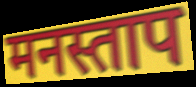
मनस्ताप